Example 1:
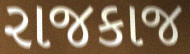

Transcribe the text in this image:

રાજકાજ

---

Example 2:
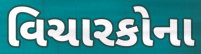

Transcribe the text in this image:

વિચારકોના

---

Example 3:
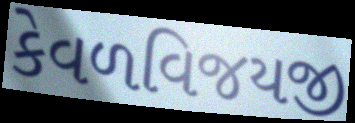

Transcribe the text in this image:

કેવળવિજયજી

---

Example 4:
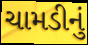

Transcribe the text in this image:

ચામડીનું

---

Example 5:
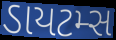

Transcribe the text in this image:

ડાયટમ્સ